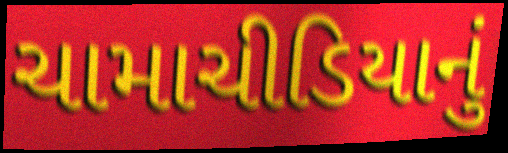
ચામાચીડિયાનું